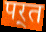
पर्त